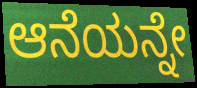
ಆನೆಯನ್ನೇ